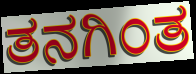
ತನಗಿಂತ